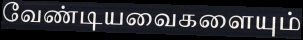
வேண்டியவைகளையும்